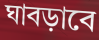
ঘাবড়াবে